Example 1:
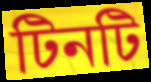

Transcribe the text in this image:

টিনটি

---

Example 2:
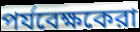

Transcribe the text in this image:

পর্যবেক্ষকেরা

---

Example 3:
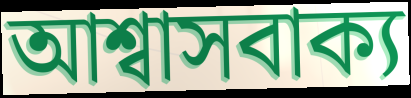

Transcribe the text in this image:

আশ্বাসবাক্য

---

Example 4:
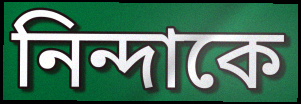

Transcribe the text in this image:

নিন্দাকে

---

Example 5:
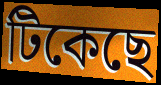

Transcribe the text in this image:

টিকেছে